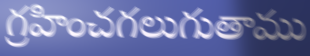
గ్రహించగలుగుతాము